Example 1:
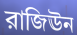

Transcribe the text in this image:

রাজিঊন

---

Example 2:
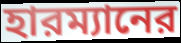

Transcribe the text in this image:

হারম্যানের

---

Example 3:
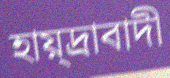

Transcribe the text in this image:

হায়্দ্রাবাদী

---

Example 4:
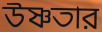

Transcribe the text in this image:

উষ্ণতার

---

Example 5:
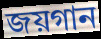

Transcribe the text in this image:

জয়গান